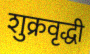
शुक्रवृद्धी